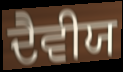
ਦੈਵੀਯ